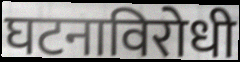
घटनाविरोधी